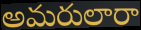
అమరులారా